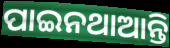
ପାଇନଥାଆନ୍ତି